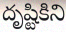
దృష్టికిని